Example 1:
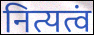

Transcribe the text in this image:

नित्यत्वं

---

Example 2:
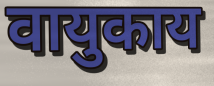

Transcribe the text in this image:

वायुकाय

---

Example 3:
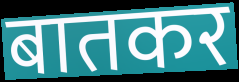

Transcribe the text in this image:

बातकर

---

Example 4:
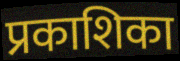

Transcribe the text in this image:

प्रकाशिका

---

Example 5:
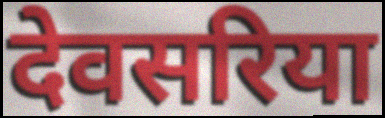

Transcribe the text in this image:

देवसरिया